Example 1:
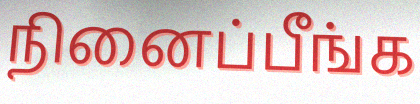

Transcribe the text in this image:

நினைப்பீங்க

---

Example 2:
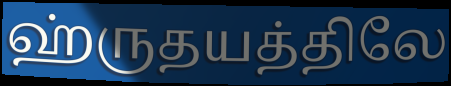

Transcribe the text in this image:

ஹ்ருதயத்திலே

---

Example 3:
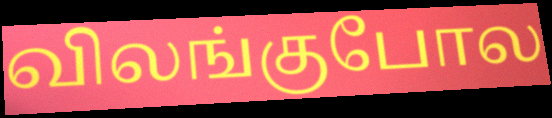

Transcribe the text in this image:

விலங்குபோல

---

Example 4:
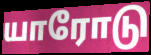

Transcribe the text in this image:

யாரோடு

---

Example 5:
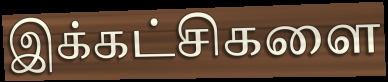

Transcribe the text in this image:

இக்கட்சிகளை